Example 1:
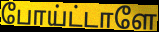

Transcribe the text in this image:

போய்ட்டாளே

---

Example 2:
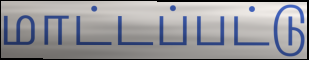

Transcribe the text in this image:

மாட்டப்பட்டு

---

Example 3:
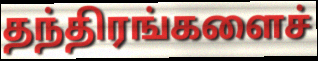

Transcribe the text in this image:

தந்திரங்களைச்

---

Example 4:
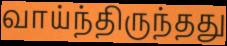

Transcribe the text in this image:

வாய்ந்திருந்தது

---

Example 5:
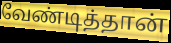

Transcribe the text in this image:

வேண்டித்தான்